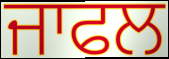
ਜਾਫਲ